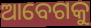
ଆବେଗକୁ